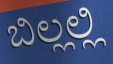
ಬಿಲ್ಲಲ್ಲಿ